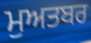
ਮੁਅਤਬਰ